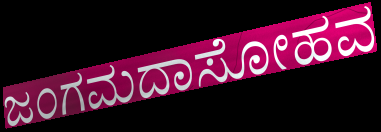
ಜಂಗಮದಾಸೋಹವ